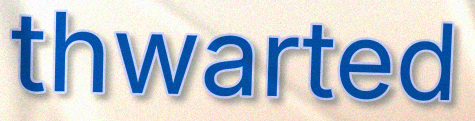
thwarted